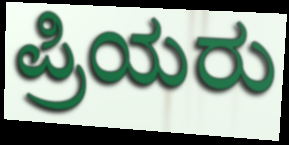
ಪ್ರಿಯರು